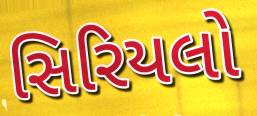
સિરિયલો